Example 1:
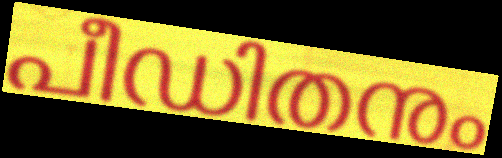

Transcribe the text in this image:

പീഡിതനും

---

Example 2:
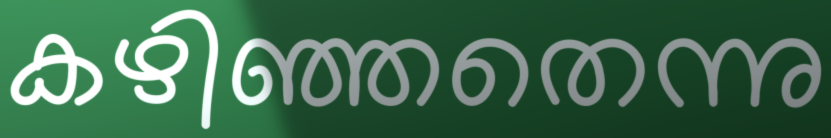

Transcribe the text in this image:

കഴിഞ്ഞതെന്നു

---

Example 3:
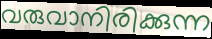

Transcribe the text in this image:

വരുവാനിരിക്കുന്ന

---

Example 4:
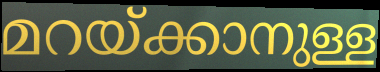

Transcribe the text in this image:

മറയ്ക്കാനുള്ള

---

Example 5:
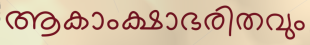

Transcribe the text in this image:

ആകാംക്ഷാഭരിതവും